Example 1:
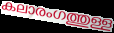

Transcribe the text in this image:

കലാരംഗത്തുള്ള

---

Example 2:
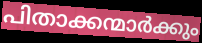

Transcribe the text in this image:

പിതാക്കന്മാർക്കും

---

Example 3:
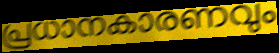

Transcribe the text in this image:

പ്രധാനകാരണവും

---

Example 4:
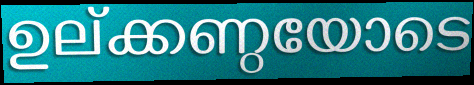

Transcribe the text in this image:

ഉല്ക്കണ്ഠയോടെ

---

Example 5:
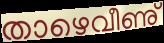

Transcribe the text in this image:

താഴെവീണു്